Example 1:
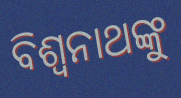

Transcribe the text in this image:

ବିଶ୍ବନାଥଙ୍କୁ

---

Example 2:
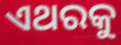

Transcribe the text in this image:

ଏଥରକୁ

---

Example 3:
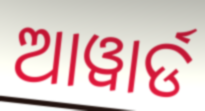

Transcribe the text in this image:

ଆୱାର୍ଡ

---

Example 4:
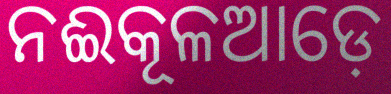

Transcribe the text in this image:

ନଈକୂଳଆଡ଼େ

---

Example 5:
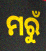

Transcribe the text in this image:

ମରୁଁ